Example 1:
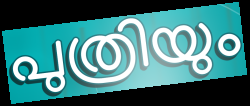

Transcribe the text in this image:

പുത്രിയും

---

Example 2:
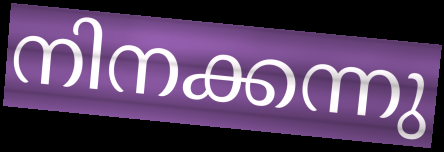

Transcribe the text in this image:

നിനക്കന്നു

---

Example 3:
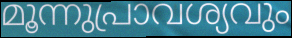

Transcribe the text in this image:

മൂന്നുപ്രാവശ്യവും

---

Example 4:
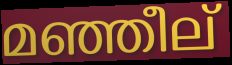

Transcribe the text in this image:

മഞ്ഞീല്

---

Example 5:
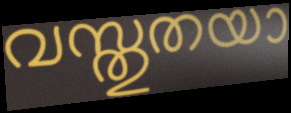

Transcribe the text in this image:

വസ്തുതയാ